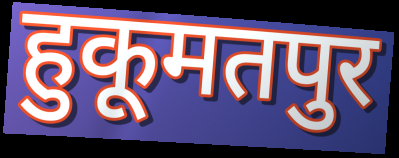
हुकूमतपुर